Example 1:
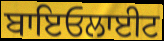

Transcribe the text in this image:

ਬਾਇਓਲਾਈਟ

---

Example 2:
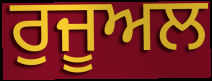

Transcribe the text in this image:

ਰੁਜੂਅਲ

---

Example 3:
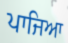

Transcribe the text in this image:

ਪਾਜਿਆ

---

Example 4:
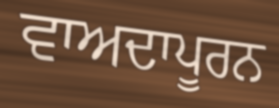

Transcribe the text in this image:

ਵਾਅਦਾਪੂਰਨ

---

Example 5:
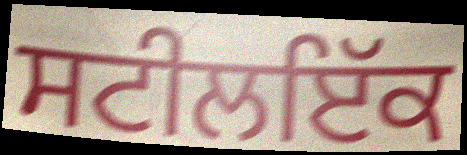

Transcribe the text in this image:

ਸਟੀਲਇੱਕ